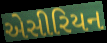
એસીરિયન